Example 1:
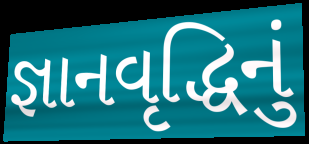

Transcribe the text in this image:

જ્ઞાનવૃદ્ધિનું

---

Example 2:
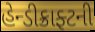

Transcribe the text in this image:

હેન્ડીક્રાફ્ટની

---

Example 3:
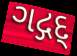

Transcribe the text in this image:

ગદ્ગદ્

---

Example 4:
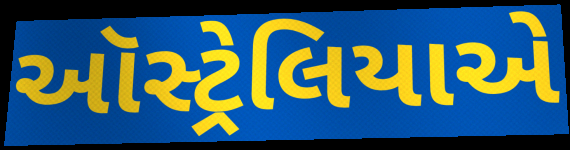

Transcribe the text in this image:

ઑસ્ટ્રેલિયાએ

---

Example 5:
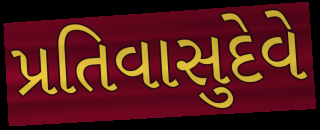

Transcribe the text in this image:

પ્રતિવાસુદેવે